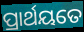
ପ୍ରାର୍ଥୟତେ